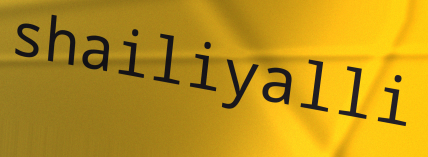
shailiyalli